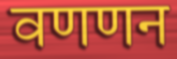
वणणन